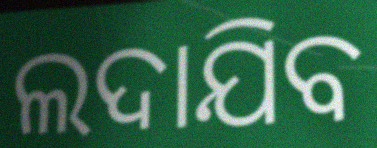
ଲଦାଯିବ